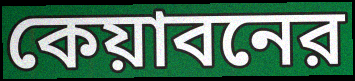
কেয়াবনের